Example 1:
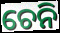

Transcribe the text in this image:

ଚେନି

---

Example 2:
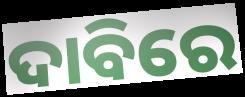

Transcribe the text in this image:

ଦାବିରେ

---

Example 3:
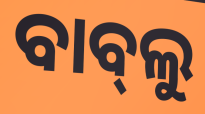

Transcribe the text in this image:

ବାବ୍‍ଲୁ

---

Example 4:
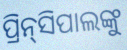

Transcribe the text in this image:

ପ୍ରିନ୍‌ସିପାଲଙ୍କୁ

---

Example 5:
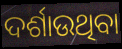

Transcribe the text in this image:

ଦର୍ଶାଉଥିବା